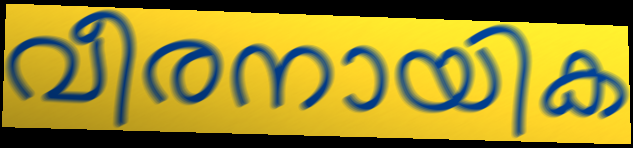
വീരനായിക